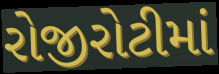
રોજીરોટીમાં